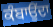
ਕੰਬਾਉਂਦਾ